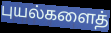
புயல்களைத்